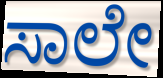
ಸಾಲೇ